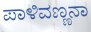
ಪಾಳಿವಣ್ಣನಾ